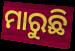
ମାରୁଛି